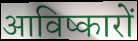
आविष्कारों